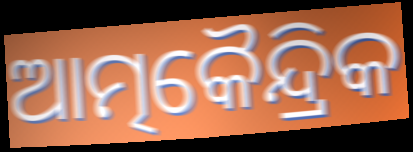
ଆତ୍ମକୈନ୍ଦ୍ରିକ